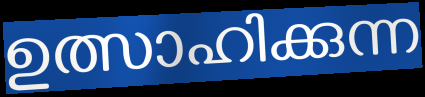
ഉത്സാഹിക്കുന്ന